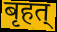
बृहत्